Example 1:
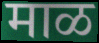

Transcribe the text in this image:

माळ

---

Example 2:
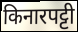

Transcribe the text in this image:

किनारपट्टी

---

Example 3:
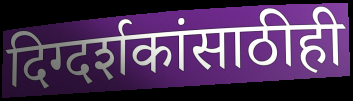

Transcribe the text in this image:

दिग्दर्शकांसाठीही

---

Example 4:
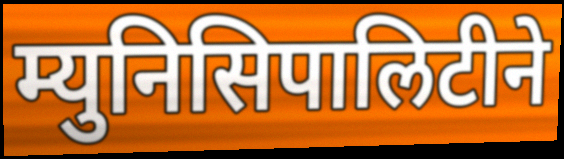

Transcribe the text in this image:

म्युनिसिपालिटीने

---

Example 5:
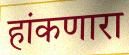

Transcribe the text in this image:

हांकणारा